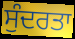
ਸੁੰਦਰਤਾ